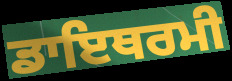
ਡਾਇਥਰਮੀ